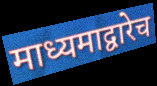
माध्यमाद्वारेच